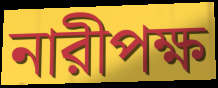
নারীপক্ষ